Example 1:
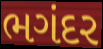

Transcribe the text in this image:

ભગંદર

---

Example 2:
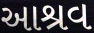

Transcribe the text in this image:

આશ્રવ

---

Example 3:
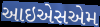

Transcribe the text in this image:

આઇએસએમ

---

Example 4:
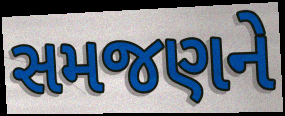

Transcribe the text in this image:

સમજણને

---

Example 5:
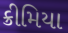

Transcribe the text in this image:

ક્રીમિયા